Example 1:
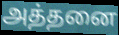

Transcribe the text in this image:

அத்தனை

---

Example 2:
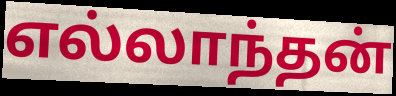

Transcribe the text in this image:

எல்லாந்தன்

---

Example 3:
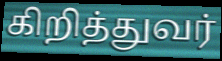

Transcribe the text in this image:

கிறித்துவர்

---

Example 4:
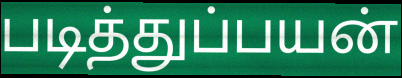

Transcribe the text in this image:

படித்துப்பயன்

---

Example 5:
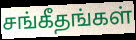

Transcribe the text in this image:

சங்கீதங்கள்